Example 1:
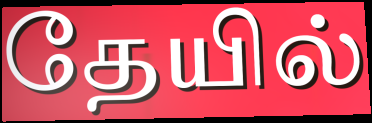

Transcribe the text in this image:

தேயில்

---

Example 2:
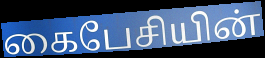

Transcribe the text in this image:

கைபேசியின்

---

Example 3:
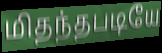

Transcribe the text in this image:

மிதந்தபடியே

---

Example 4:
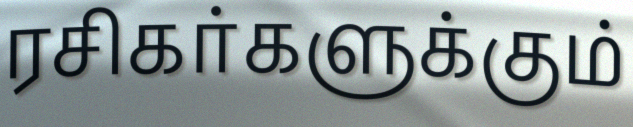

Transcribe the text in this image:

ரசிகர்களுக்கும்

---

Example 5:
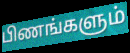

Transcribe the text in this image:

பிணங்களும்